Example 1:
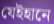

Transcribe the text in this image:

যেইহানে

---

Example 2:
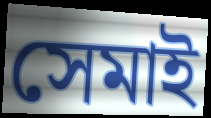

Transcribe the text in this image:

সেমাই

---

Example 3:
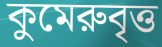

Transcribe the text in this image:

কুমেরুবৃত্ত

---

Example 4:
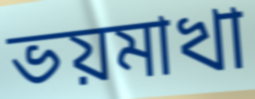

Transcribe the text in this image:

ভয়মাখা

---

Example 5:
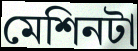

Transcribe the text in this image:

মেশিনটা